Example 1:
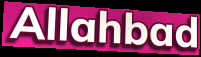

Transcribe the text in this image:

Allahbad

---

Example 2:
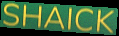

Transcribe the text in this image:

SHAICK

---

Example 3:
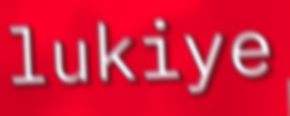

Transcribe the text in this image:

lukiye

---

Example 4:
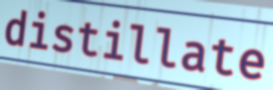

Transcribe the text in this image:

distillate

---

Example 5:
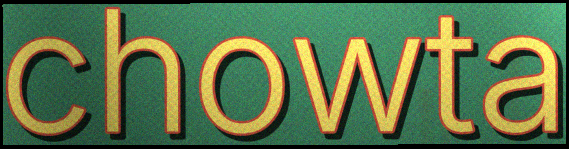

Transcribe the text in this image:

chowta